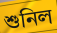
শুনিল